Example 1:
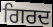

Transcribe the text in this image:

ਗਿਰਦ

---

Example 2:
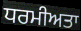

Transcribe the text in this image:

ਧਰਮੀਅਤਾ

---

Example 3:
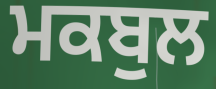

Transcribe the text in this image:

ਮਕਬੁਲ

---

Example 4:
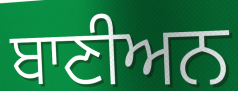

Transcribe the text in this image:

ਬਾਣੀਅਨ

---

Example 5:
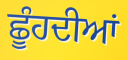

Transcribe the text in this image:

ਛੂੰਹਦੀਆਂ